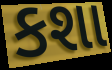
કશા